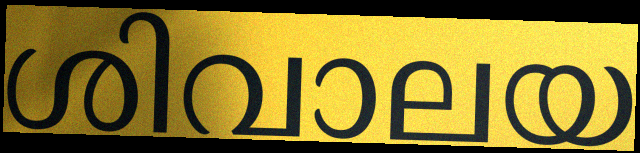
ശിവാലയ